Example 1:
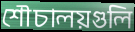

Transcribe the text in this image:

শৌচালয়গুলি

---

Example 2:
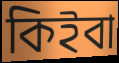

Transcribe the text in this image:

কিইবা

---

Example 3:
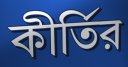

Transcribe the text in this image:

কীর্তির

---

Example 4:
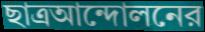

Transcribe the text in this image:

ছাত্রআন্দোলনের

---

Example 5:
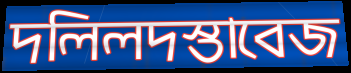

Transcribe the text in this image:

দলিলদস্তাবেজ